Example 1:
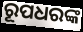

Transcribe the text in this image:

ରୂପଧରଙ୍କ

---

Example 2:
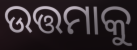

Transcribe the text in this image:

ଉତ୍ତମାକୁ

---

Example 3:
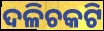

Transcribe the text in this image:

ଦଳିଚକଟି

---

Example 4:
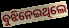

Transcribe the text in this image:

ବୁଝିନେଇଥିଲେ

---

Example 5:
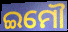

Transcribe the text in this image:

ଇମୌ